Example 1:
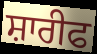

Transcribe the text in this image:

ਸ਼ਾਰੀਫ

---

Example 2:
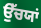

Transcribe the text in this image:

ਉੱਚਯਾਂ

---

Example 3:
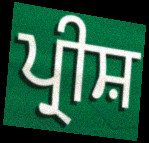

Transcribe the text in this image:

ਪ੍ਰੀਸ਼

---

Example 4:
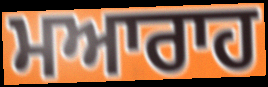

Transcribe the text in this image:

ਮਆਰਾਹ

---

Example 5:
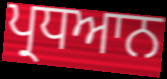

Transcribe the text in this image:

ਪ੍ਰਧਆਨ